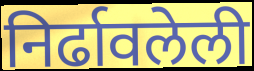
निर्ढावलेली